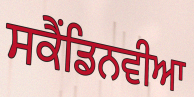
ਸਕੈਂਡਿਨਵੀਆ